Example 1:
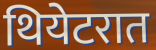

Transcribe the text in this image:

थियेटरात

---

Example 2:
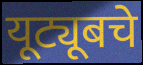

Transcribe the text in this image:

यूट्यूबचे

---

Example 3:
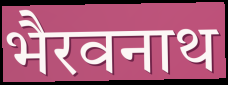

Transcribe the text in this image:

भैरवनाथ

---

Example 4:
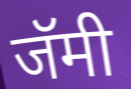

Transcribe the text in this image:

जॅमी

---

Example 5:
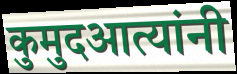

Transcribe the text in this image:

कुमुदआत्यांनी